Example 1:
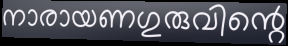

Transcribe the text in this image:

നാരായണഗുരുവിന്റെ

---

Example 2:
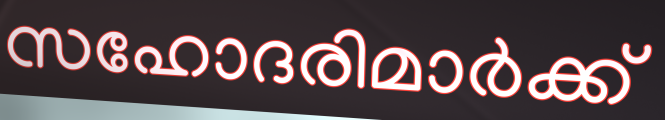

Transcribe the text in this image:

സഹോദരിമാർക്ക്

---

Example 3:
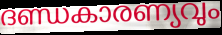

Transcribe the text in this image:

ദണ്ഡകാരണ്യവും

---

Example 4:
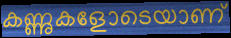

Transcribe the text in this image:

കണ്ണുകളോടെയാണ്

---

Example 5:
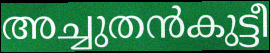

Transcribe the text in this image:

അച്ചുതൻകുട്ടീ